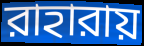
রাহারায়